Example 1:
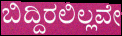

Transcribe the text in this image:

ಬಿದ್ದಿರಲಿಲ್ಲವೇ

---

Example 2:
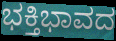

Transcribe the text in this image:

ಭಕ್ತಿಭಾವದ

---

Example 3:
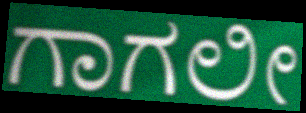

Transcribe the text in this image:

ಗಾಗಲೀ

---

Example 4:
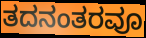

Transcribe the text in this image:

ತದನಂತರವೂ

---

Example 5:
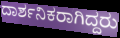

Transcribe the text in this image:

ದಾರ್ಶನಿಕರಾಗಿದ್ದರು